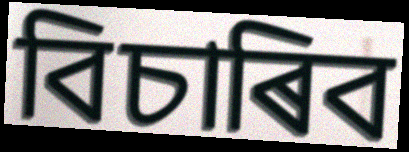
বিচাৰিব